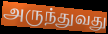
அருந்துவது